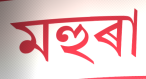
মহুৰা